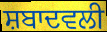
ਸ਼ਬਾਦਵਲੀ